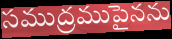
సముద్రముపైనను